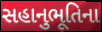
સહાનુભૂતિના